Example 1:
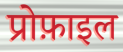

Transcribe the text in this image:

प्रोफ़ाइल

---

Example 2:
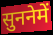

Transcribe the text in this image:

सुननेमें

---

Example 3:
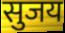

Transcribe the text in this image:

सुजय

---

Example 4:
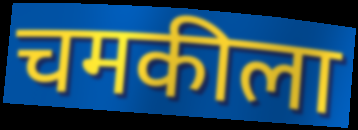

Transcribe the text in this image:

चमकीला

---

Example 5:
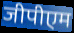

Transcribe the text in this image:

जीपीएम